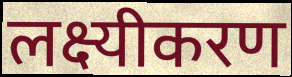
लक्ष्यीकरण